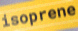
isoprene